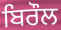
ਬਿਰੌਲ